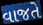
વાજતે